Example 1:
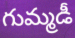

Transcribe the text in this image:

గుమ్మడీ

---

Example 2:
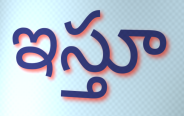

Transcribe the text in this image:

ఇస్తూ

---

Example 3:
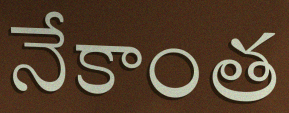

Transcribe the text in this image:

నేకాంత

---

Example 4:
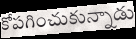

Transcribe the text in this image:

కోపగించుకున్నాడు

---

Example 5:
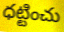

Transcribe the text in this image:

ధట్టించు